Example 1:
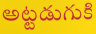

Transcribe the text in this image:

అట్టడుగుకి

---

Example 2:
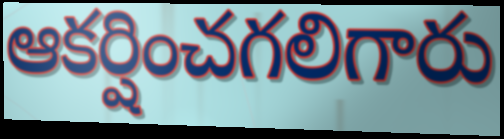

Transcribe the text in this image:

ఆకర్షించగలిగారు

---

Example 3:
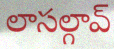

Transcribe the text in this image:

లాసల్గావ్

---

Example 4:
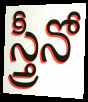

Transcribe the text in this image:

స్త్రీనో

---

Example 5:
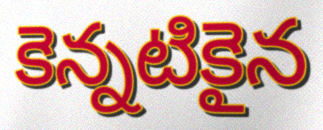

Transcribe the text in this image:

కెన్నటికైన